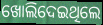
ଖୋଲିଦେଇଥିଲେ